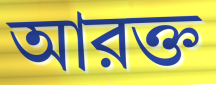
আরক্ত